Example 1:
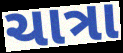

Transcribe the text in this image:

ચાત્રા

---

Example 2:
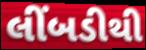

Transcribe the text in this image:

લીંબડીથી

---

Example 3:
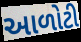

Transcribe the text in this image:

આળોટી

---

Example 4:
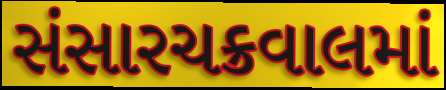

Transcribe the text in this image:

સંસારચક્રવાલમાં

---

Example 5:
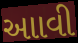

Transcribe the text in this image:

આાવી